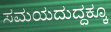
ಸಮಯದುದ್ದಕ್ಕೂ